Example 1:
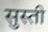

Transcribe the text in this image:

सुस्‍ती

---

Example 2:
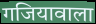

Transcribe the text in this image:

गजियावाला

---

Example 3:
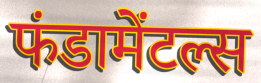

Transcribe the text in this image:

फंडामेंटल्स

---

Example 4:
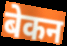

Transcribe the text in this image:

बेकन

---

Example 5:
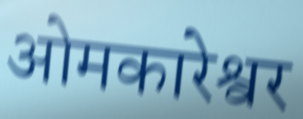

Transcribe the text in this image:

ओमकारेश्वर